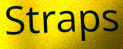
Straps